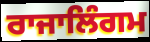
ਰਾਜਾਲਿੰਗਮ